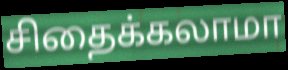
சிதைக்கலாமா